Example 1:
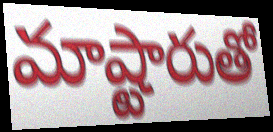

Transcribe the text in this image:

మాష్టారుతో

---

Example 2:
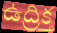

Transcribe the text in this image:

ఉద్రిక్త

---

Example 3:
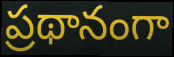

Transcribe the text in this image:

ప్రథానంగా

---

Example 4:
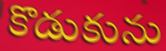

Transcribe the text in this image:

కొడుకును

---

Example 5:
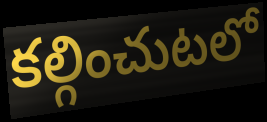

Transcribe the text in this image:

కల్గించుటలో